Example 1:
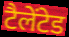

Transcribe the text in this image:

टैलेंटेड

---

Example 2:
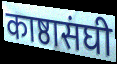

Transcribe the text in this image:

काष्ठासंघी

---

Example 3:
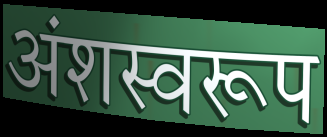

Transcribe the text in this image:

अंशस्वरूप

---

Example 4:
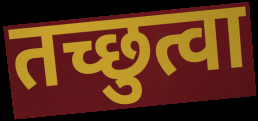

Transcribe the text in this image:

तच्छुत्वा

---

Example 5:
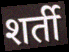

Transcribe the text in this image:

शर्ती